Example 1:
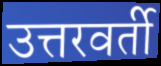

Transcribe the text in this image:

उत्तरवर्ती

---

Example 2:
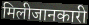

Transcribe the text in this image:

मिलीजानकारी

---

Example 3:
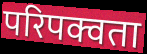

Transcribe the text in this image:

परिपक्वता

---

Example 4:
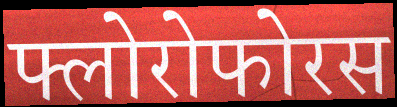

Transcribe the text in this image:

फ्लोरोफोरस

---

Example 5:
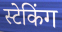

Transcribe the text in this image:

स्टेकिंग